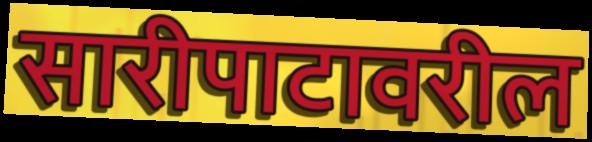
सारीपाटावरील